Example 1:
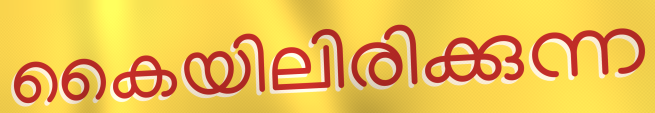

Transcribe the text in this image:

കൈയിലിരിക്കുന്ന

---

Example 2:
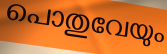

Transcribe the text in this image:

പൊതുവേയും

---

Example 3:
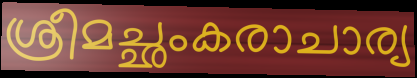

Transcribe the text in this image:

ശ്രീമച്ഛംകരാചാര്യ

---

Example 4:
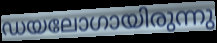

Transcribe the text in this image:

ഡയലോഗായിരുന്നു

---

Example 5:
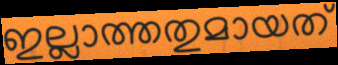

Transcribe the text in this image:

ഇല്ലാത്തതുമായത്